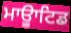
ਮਾਊਾਟਿਡ